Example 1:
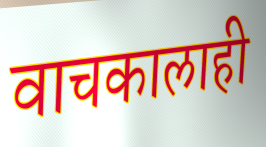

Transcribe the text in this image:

वाचकालाही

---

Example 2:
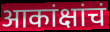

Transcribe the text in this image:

आकांक्षांचं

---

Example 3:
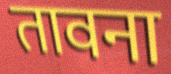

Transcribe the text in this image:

तावना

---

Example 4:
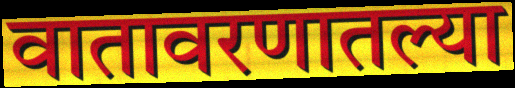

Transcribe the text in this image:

वातावरणातल्या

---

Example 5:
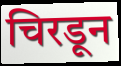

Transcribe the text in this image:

चिरडून